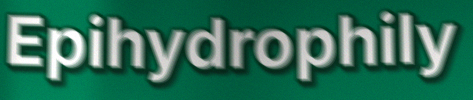
Epihydrophily